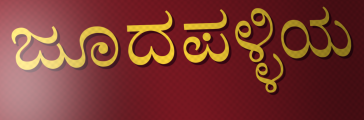
ಜೂದಪಳ್ಳಿಯ